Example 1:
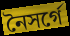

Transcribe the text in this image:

নৈসর্গে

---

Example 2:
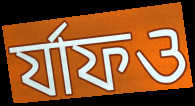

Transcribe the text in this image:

র্যাফও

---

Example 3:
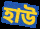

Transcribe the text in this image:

হাউ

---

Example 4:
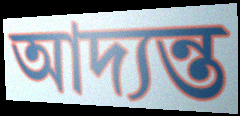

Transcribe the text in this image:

আদ্যন্ত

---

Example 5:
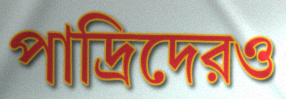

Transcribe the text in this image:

পাদ্রিদেরও